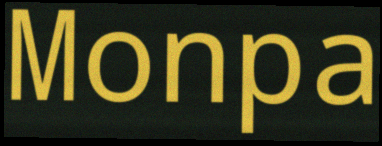
Monpa